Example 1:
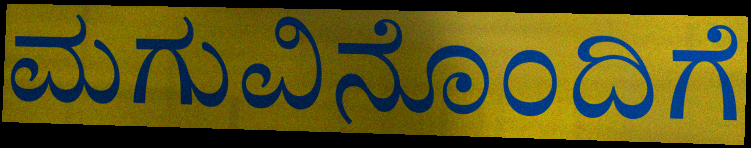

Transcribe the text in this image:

ಮಗುವಿನೊಂದಿಗೆ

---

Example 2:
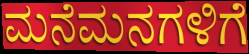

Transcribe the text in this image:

ಮನೆಮನಗಳಿಗೆ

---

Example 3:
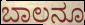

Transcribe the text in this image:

ಬಾಲನೂ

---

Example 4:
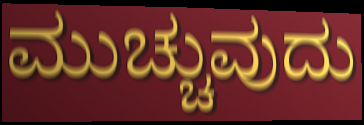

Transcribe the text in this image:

ಮುಚ್ಚುವುದು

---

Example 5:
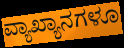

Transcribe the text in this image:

ವ್ಯಾಖ್ಯಾನಗಳೂ